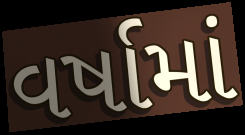
વર્ષામાં